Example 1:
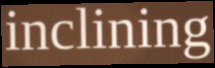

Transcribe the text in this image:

inclining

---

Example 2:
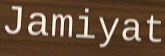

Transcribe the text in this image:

Jamiyat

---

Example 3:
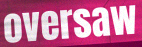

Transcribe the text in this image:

oversaw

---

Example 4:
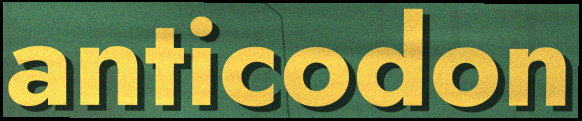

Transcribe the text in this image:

anticodon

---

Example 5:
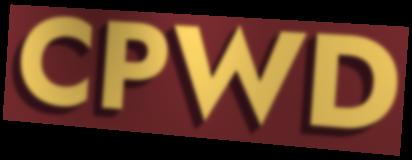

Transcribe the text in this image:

CPWD